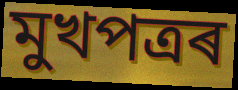
মুখপত্ৰৰ